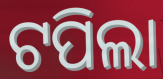
ଟପିଲା